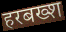
हरबख्श